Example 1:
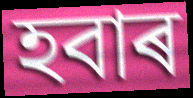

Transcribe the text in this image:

হবাৰ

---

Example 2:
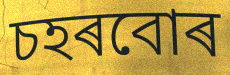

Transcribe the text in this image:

চহৰবোৰ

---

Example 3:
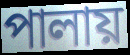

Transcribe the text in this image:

পালায়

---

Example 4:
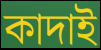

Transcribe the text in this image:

কাদাই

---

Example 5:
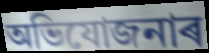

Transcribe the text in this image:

অভিযোজনাৰ